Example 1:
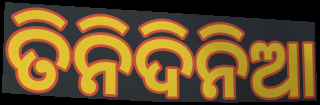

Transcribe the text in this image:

ତିନିଦିନିଆ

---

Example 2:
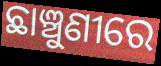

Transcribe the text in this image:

ଛାଞ୍ଚୁଣୀରେ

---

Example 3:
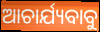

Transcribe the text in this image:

ଆଚାର୍ଯ୍ୟବାବୁ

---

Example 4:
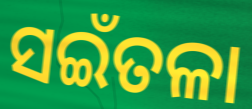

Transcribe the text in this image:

ସଇଁତଳା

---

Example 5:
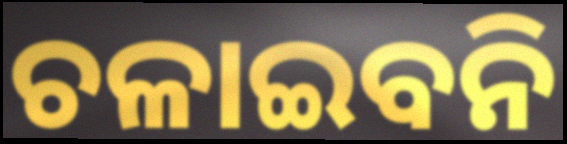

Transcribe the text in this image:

ଚଳାଇବନି